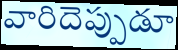
వారిదెప్పుడూ